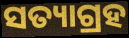
ସତ୍ୟାଗ୍ରହ